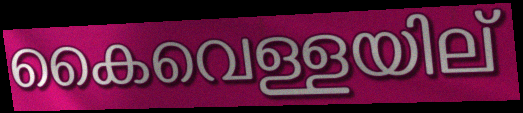
കൈവെള്ളയില്